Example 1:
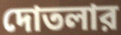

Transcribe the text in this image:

দোতলার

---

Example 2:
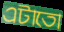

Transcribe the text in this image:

এটাতো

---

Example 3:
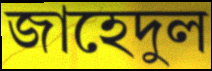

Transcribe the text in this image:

জাহেদুল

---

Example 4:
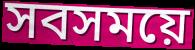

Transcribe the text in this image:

সবসময়ে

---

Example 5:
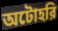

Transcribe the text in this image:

অটোহরি